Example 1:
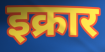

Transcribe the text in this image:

इक्रार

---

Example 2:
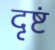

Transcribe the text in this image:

दृष्टं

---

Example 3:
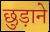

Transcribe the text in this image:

छुड़ाने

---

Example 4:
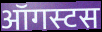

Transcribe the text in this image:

ऑगस्टस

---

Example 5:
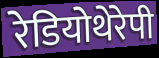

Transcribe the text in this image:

रेडियोथेरेपी